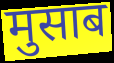
मुसाब